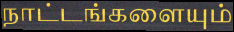
நாட்டங்களையும்